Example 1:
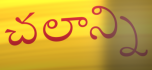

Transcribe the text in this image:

చలాన్ని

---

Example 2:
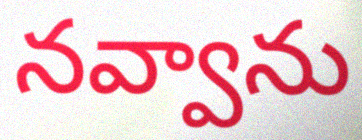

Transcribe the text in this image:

నవ్వాను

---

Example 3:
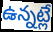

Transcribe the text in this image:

ఉన్నట్లే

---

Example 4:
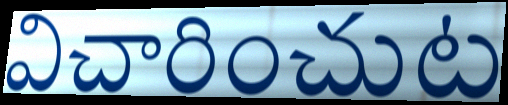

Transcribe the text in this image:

విచారించుట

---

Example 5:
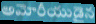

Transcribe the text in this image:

అమోరీయుడైన